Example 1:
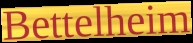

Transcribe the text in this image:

Bettelheim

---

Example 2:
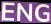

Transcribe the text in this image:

ENG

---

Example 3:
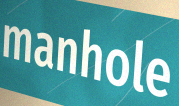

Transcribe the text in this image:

manhole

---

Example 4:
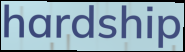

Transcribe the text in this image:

hardship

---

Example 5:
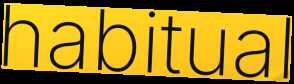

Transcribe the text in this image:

habitual